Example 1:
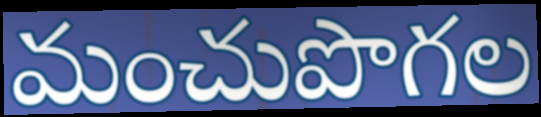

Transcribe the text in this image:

మంచుపొగల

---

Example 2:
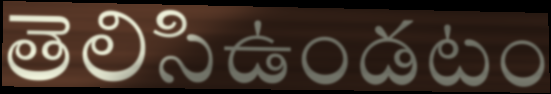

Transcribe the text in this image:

తెలిసిఉండటం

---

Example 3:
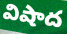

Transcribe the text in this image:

విషాద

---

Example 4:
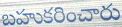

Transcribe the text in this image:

బహుకరించారు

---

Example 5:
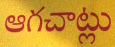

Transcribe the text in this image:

ఆగచాట్లు